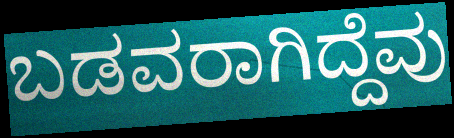
ಬಡವರಾಗಿದ್ದೆವು